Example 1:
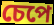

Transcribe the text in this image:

চেপে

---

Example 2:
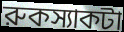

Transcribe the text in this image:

রুকস্যাকটা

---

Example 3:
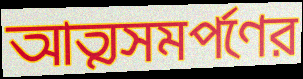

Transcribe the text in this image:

আত্মসমর্পণের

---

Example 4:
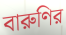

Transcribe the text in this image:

বারুণির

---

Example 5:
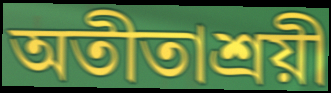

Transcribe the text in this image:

অতীতাশ্রয়ী